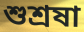
শুশ্রষা